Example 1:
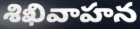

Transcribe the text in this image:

శిఖివాహన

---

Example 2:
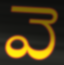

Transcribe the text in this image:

వె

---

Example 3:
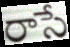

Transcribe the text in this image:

రాసే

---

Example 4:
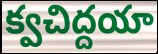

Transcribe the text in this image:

క్వచిద్దయా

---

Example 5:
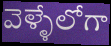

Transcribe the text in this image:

వెళ్ళేలోగా